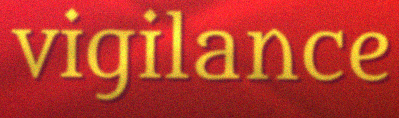
vigilance